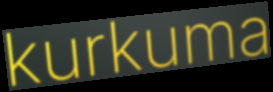
kurkuma